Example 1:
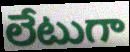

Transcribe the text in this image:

లేటుగా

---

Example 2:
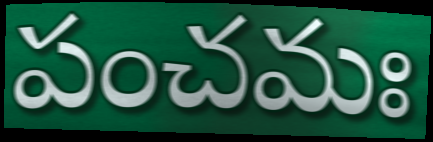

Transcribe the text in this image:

పంచమః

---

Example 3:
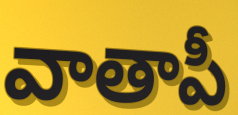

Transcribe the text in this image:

వాతాపీ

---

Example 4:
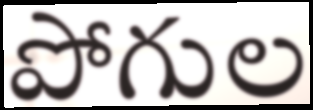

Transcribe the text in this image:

పోగుల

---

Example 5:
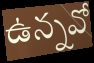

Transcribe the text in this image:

ఉన్నవో